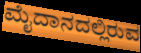
ಮೈದಾನದಲ್ಲಿರುವ